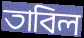
তাবিল